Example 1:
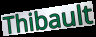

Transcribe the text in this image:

Thibault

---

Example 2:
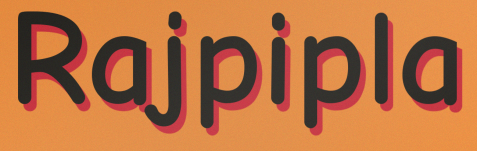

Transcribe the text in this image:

Rajpipla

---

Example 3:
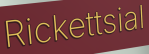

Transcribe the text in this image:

Rickettsial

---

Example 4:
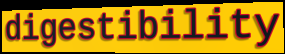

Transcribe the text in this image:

digestibility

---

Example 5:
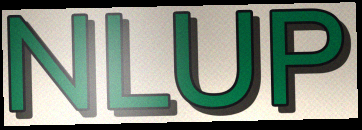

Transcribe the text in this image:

NLUP